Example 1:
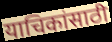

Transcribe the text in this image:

याचिकांसाठी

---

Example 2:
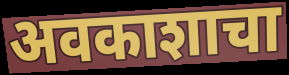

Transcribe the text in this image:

अवकाशाचा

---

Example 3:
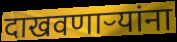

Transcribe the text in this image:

दाखवणाऱ्यांना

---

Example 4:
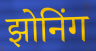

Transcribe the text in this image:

झोनिंग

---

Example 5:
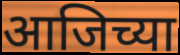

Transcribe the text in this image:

आजिच्या